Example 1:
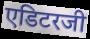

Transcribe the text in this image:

एडिटरजी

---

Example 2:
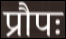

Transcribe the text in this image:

प्रौपः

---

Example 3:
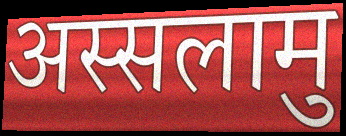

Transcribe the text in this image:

अस्सलामु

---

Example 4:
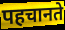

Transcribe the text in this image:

पहचानते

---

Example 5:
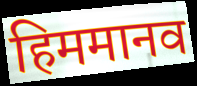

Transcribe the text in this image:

हिममानव